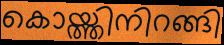
കൊയ്ത്തിനിറങ്ങി